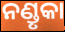
ନଣ୍ଡୃକା